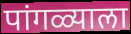
पांगळ्याला